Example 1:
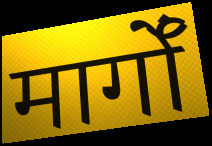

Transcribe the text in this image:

मार्गोँ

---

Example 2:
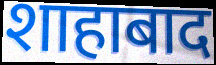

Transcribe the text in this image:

शाहाबाद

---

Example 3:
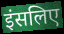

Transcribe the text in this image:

इंसलिए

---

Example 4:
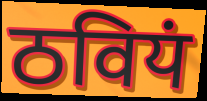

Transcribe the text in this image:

ठवियं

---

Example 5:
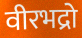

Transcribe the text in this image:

वीरभद्रो